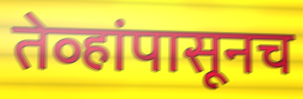
तेव्हांपासूनच